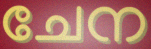
ചേന